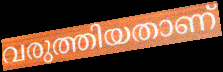
വരുത്തിയതാണ്